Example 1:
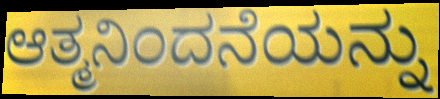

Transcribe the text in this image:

ಆತ್ಮನಿಂದನೆಯನ್ನು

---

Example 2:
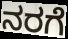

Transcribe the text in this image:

ನರಗೆ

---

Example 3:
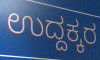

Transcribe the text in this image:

ಉದ್ದಕ್ಕರ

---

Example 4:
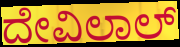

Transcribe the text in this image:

ದೇವಿಲಾಲ್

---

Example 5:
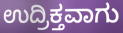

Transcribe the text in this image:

ಉದ್ರಿಕ್ತವಾಗು